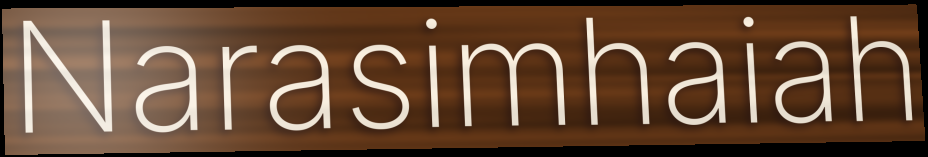
Narasimhaiah